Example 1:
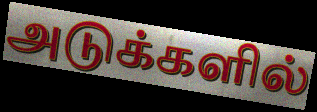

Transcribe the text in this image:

அடுக்களில்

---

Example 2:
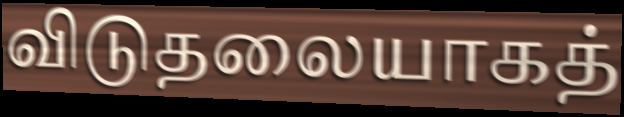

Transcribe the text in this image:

விடுதலையாகத்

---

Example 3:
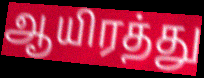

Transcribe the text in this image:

ஆயிரத்து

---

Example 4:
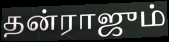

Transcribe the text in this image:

தன்ராஜும்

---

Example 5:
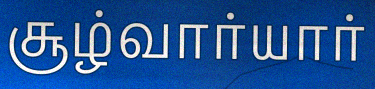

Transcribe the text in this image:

சூழ்வார்யார்